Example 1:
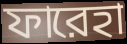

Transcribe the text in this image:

ফারেহা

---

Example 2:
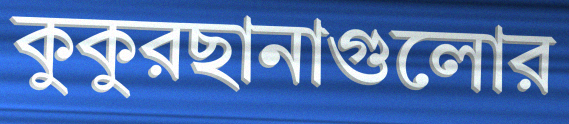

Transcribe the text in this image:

কুকুরছানাগুলোর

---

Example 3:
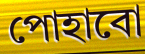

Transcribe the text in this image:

পোহাবো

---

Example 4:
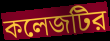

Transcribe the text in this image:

কলেজটির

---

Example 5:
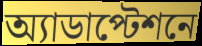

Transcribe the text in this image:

অ্যাডাপ্টেশনে